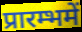
प्रारम्भमें